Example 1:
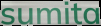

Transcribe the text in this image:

sumita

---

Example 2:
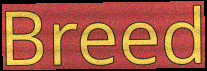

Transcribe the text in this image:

Breed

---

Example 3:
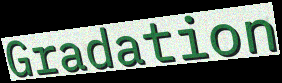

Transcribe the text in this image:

Gradation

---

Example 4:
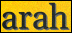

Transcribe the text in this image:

arah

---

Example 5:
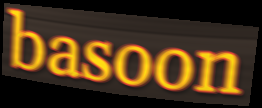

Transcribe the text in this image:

basoon